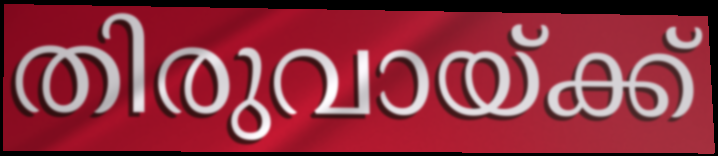
തിരുവായ്ക്ക്